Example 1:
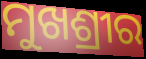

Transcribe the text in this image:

ମୁଖଶ୍ରୀର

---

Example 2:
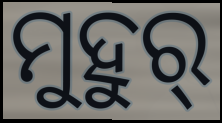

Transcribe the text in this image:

ମୁହୁର୍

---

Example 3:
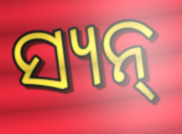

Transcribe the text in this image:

ସ୍ୟନ୍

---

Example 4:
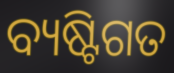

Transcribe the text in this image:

ବ୍ୟଷ୍ଟିଗତ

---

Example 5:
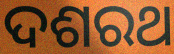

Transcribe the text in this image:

ଦଶରଥ